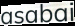
asabai